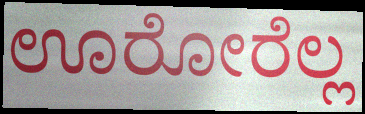
ಊರೋರೆಲ್ಲ